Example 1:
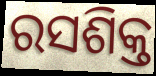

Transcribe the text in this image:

ରସଶିକ୍ତ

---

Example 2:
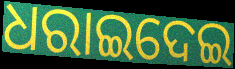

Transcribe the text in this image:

ଧରାଇଦେଇ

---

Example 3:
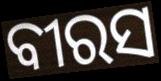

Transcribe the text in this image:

ବୀରସ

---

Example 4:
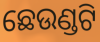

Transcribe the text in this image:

ଛେଉଣ୍ଡଟି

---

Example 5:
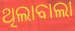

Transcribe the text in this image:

ଥିଲାବାଲା